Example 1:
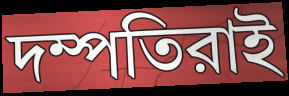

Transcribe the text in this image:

দম্পতিরাই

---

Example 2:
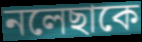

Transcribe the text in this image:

নলেছাকে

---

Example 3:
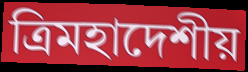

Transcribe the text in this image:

ত্রিমহাদেশীয়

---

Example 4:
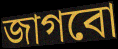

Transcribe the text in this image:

জাগবো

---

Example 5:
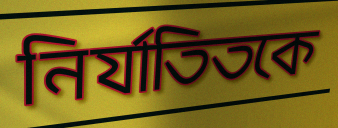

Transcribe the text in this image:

নির্যাতিতকে